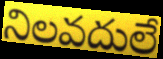
నిలవదులే